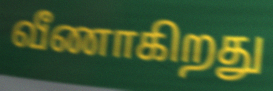
வீணாகிறது